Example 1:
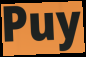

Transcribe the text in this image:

Puy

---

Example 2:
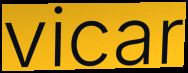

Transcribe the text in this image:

vicar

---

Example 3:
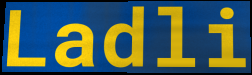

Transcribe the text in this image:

Ladli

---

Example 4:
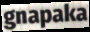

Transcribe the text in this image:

gnapaka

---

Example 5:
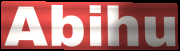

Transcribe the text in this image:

Abihu